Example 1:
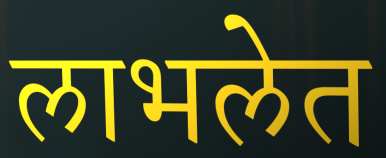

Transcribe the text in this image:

लाभलेत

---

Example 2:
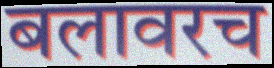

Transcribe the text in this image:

बलावरच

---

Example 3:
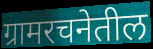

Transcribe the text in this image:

ग्रामरचनेतील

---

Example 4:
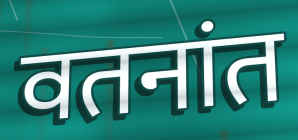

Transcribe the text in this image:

वतनांत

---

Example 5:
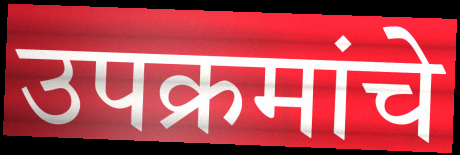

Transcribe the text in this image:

उपक्रमांचे